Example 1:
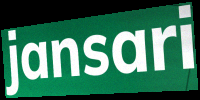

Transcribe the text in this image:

jansari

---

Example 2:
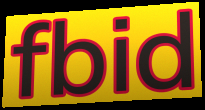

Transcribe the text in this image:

fbid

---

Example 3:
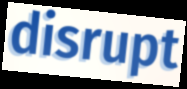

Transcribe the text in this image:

disrupt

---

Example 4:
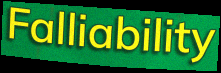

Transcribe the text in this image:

Falliability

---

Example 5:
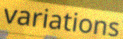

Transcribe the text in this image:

variations